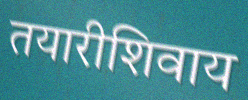
तयारीशिवाय